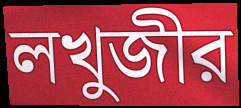
লখুজীর